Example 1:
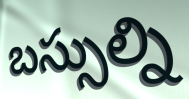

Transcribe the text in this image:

బస్సుల్ని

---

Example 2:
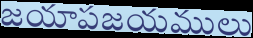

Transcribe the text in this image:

జయాపజయములు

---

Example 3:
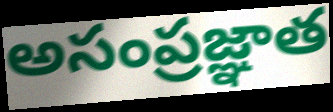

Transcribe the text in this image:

అసంప్రజ్ఞాత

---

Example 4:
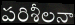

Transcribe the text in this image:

పరిశీలనా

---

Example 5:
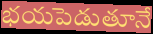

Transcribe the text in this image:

భయపెడుతూనే